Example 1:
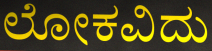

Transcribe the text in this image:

ಲೋಕವಿದು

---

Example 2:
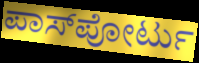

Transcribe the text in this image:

ಪಾಸ್‌ಪೋರ್ಟು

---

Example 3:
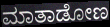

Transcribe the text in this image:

ಮಾತಾಡೋಣ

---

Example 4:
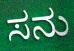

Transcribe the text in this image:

ಸನು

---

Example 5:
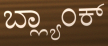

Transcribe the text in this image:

ಬ್ಲ್ಯಾಂಕ್